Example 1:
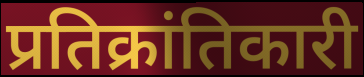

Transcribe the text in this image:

प्रतिक्रांतिकारी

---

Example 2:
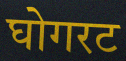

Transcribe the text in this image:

घोगरट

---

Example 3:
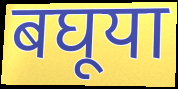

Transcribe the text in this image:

बघूया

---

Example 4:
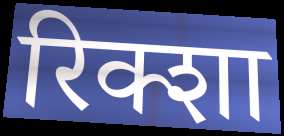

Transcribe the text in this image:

रिक्शा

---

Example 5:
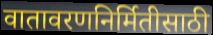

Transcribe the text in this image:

वातावरणनिर्मितीसाठी